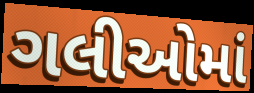
ગલીઓમાં